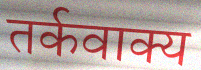
तर्कवाक्य